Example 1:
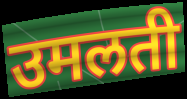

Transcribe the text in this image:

उमलती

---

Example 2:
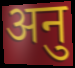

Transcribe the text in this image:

अनु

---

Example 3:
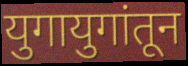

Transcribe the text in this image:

युगायुगांतून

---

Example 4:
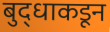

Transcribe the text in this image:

बुद्धाकडून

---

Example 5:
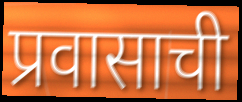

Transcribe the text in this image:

प्रवासाची